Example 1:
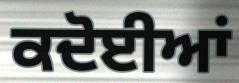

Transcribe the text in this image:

ਕਦੋਈਆਂ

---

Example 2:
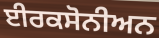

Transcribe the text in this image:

ਈਰਕਸੋਨੀਅਨ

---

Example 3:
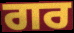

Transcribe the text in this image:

ਗਰ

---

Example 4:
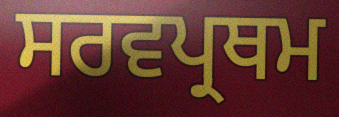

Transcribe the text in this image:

ਸਰਵਪ੍ਰਥਮ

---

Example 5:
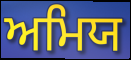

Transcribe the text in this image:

ਅਮਿਯ